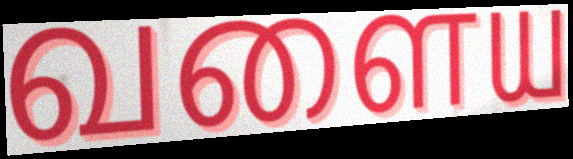
வளைய